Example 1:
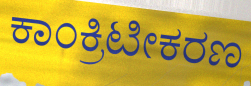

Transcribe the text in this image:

ಕಾಂಕ್ರಿಟೀಕರಣ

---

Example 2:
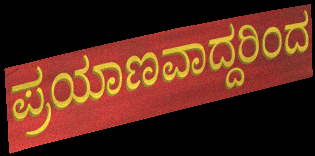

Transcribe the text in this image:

ಪ್ರಯಾಣವಾದ್ದರಿಂದ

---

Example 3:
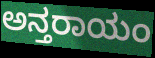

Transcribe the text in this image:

ಅನ್ತರಾಯಂ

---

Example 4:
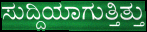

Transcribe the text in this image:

ಸುದ್ದಿಯಾಗುತ್ತಿತ್ತು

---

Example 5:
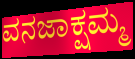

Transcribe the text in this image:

ವನಜಾಕ್ಷಮ್ಮ